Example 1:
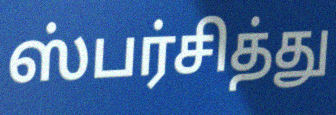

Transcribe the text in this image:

ஸ்பர்சித்து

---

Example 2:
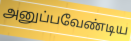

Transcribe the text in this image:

அனுப்பவேண்டிய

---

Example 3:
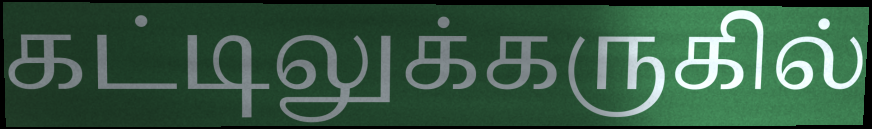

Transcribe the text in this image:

கட்டிலுக்கருகில்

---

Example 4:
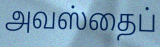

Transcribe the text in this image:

அவஸ்தைப்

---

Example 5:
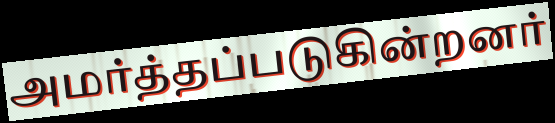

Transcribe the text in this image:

அமர்த்தப்படுகின்றனர்